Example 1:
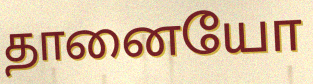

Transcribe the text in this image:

தானையோ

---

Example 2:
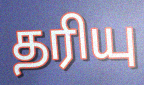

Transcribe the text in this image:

தரியு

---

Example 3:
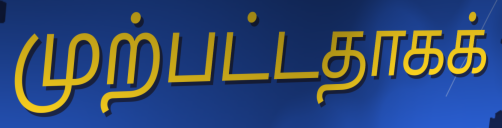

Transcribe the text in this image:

முற்பட்டதாகக்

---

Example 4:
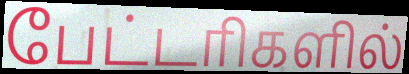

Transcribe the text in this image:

பேட்டரிகளில்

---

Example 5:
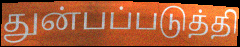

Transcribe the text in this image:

துன்பப்படுத்தி